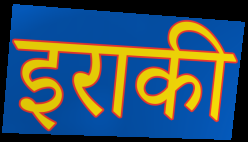
इराकी